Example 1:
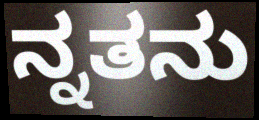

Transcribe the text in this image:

ನ್ನತನು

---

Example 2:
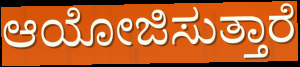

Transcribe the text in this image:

ಆಯೋಜಿಸುತ್ತಾರೆ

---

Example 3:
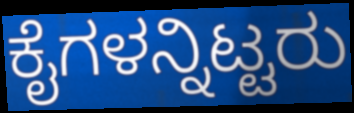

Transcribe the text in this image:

ಕೈಗಳನ್ನಿಟ್ಟರು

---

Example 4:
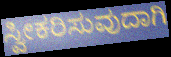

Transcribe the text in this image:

ಸ್ವೀಕರಿಸುವುದಾಗಿ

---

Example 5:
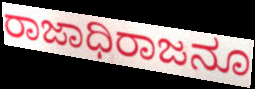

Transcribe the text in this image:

ರಾಜಾಧಿರಾಜನೂ